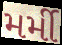
મર્મી